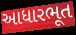
આધારભૂત